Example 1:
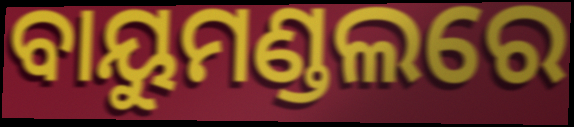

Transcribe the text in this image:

ବାୟୁମଣ୍ଡଲରେ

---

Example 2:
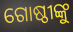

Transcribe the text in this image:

ଗୋଷ୍ଠୀଙ୍କୁ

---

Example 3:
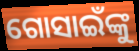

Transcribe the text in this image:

ଗୋସାଇଁଙ୍କୁ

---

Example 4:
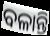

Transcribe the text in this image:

ବଳାନ୍ତି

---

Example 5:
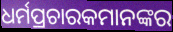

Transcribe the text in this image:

ଧର୍ମପ୍ରଚାରକମାନଙ୍କର